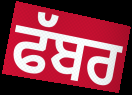
ਫੱਬਰ